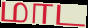
மாட